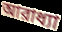
আরাধ্যা